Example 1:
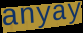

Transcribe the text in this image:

anyay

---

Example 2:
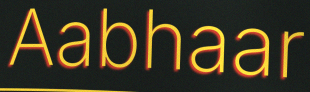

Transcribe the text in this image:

Aabhaar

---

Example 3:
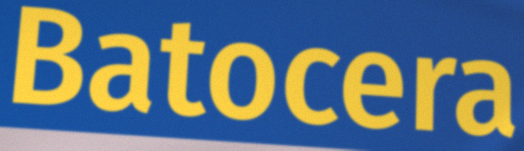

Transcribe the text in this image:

Batocera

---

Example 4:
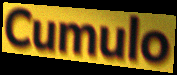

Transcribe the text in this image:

Cumulo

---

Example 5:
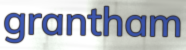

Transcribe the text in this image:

grantham